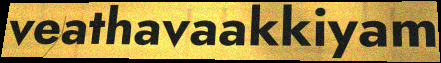
veathavaakkiyam